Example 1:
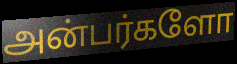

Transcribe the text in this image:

அன்பர்களோ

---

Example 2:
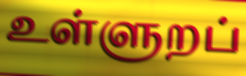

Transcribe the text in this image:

உள்ளுறப்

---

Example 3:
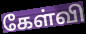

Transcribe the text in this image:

கேள்வி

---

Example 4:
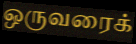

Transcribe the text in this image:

ஒருவரைக்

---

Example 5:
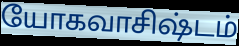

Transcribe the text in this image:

யோகவாசிஷ்டம்